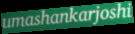
umashankarjoshi